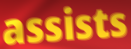
assists